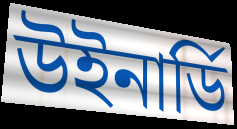
উইনার্ডি